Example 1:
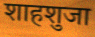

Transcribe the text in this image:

शाहशुजा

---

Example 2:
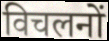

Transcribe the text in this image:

विचलनों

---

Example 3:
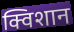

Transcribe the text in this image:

क्विशान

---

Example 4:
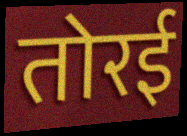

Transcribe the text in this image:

तोरई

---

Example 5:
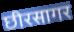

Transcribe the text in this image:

छीरसागर